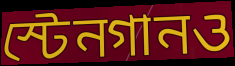
স্টেনগানও